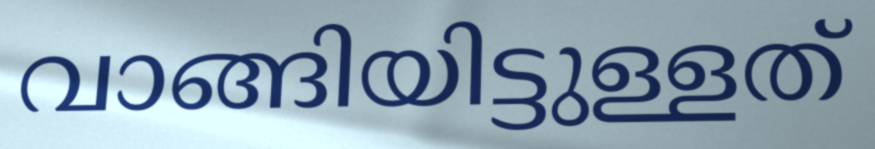
വാങ്ങിയിട്ടുള്ളത്